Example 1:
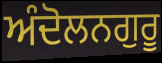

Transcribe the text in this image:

ਅੰਦੋਲਨਗੁਰੂ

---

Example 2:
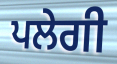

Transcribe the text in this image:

ਪਲੇਗੀ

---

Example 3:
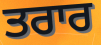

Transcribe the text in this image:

ਤਰਾਰ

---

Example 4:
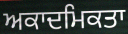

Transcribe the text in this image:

ਅਕਾਦਮਿਕਤਾ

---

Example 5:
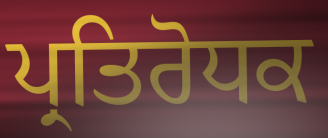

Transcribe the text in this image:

ਪ੍ਰਤਿਰੋਧਕ